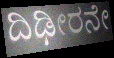
ದಿಢೀರನೇ